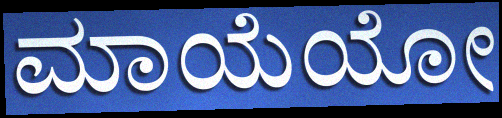
ಮಾಯೆಯೋ